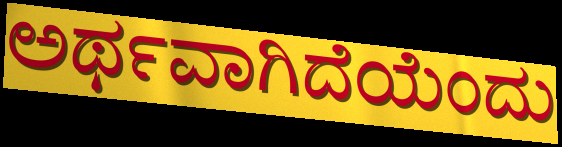
ಅರ್ಥವಾಗಿದೆಯೆಂದು